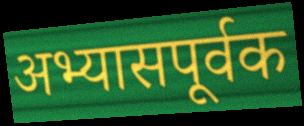
अभ्यासपूर्वक